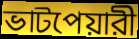
ভাটপেয়ারী